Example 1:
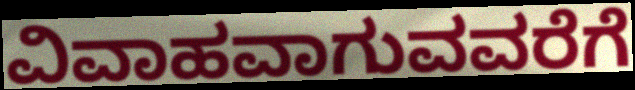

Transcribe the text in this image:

ವಿವಾಹವಾಗುವವರೆಗೆ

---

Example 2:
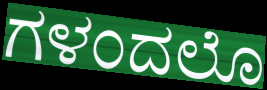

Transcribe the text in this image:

ಗಳಂದಲೊ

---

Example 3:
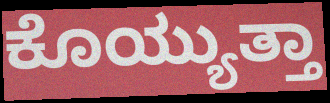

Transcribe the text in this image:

ಕೊಯ್ಯುತ್ತಾ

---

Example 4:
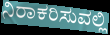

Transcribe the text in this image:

ನಿರಾಕರಿಸುವಲ್ಲಿ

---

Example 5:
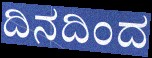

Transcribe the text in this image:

ದಿನದಿಂದ